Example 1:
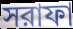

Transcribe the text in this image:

সরাফা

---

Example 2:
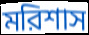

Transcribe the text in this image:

মরিশাস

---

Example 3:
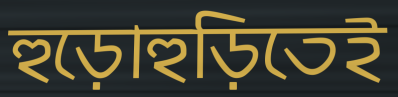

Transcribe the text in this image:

হুড়োহুড়িতেই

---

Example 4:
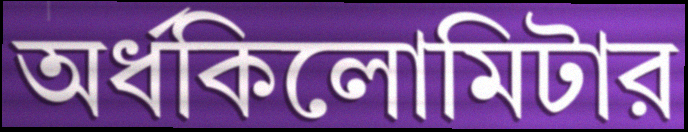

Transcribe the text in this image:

অর্ধকিলোমিটার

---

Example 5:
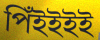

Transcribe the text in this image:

পিঁইইইই